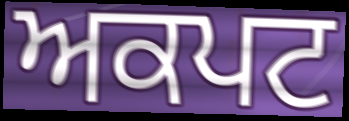
ਅਕਪਟ